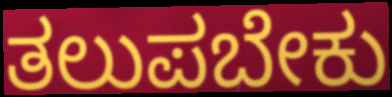
ತಲುಪಬೇಕು